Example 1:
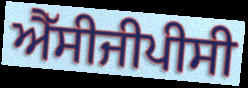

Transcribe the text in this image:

ਐੱਸੀਜੀਪੀਸੀ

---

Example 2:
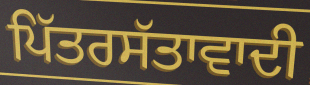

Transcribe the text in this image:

ਪਿੱਤਰਸੱਤਾਵਾਦੀ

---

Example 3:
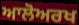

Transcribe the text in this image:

ਆਲੋਅਰਖ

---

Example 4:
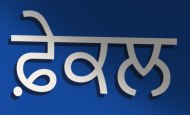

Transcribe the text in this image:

ਫ਼ੇਕਲ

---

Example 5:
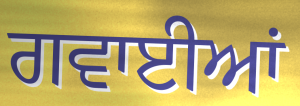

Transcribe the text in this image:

ਗਵਾਈਆਂ